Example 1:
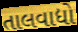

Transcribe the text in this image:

તાલવાદ્યો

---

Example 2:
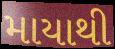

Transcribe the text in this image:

માયાથી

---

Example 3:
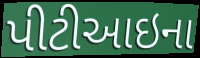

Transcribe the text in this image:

પીટીઆઇના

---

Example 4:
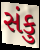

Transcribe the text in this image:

સંકુ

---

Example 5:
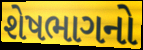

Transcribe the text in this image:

શેષભાગનો